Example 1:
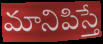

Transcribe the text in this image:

మానిపిస్తే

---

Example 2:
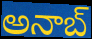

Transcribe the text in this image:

అనాబ్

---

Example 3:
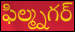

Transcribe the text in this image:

ఫిల్మ్నగర్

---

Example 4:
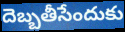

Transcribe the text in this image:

దెబ్బతీసేందుకు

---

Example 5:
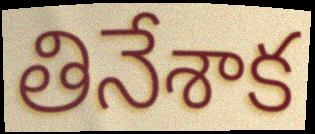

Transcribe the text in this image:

తినేశాక